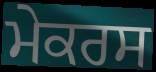
ਮੇਕਰਸ